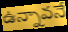
ఉన్నావనే